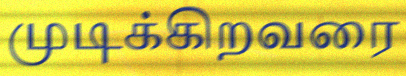
முடிக்கிறவரை